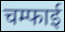
चम्फाई